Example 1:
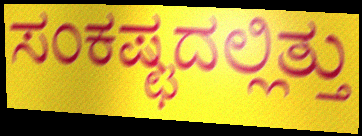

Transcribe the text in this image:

ಸಂಕಷ್ಟದಲ್ಲಿತ್ತು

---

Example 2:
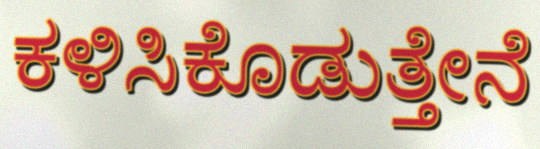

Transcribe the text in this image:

ಕಳಿಸಿಕೊಡುತ್ತೇನೆ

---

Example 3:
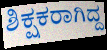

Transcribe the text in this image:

ಶಿಕ್ಷಕರಾಗಿದ್ದ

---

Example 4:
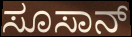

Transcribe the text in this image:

ಸೂಸಾನ್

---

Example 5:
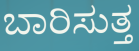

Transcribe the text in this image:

ಬಾರಿಸುತ್ತ